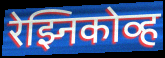
रेझ्निकोव्ह